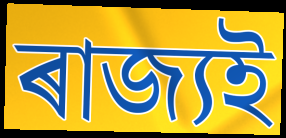
ৰাজ্যই